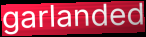
garlanded